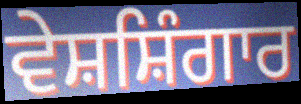
ਵੇਸ਼ਸ਼ਿੰਗਾਰ